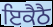
ਇਕੈਠੈ